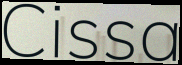
Cissa